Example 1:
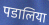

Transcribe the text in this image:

पडालिया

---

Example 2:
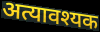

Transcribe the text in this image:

अत्यावश्यक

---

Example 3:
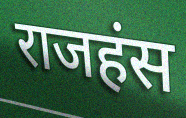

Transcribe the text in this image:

राजहंस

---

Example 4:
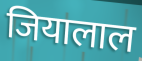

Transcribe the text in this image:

जियालाल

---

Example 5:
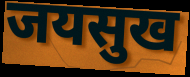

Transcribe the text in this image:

जयसुख